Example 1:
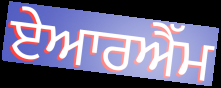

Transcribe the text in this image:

ਏਆਰਐੱਮ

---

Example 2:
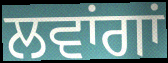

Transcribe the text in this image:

ਲਵਾਂਗਾਂ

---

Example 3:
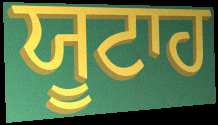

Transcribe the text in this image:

ਯੂਟਾਹ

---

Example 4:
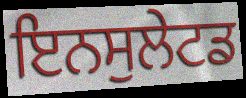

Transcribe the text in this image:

ਇਨਸੁਲੇਟਡ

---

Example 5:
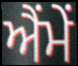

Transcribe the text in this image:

ਐਂਮੇਂ